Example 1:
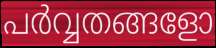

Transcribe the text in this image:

പർവ്വതങ്ങളോ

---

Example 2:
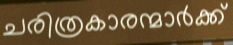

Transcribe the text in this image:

ചരിത്രകാരന്മാർക്ക്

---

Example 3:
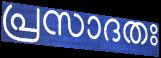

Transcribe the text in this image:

പ്രസാദതഃ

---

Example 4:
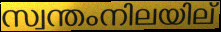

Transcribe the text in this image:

സ്വന്തംനിലയില്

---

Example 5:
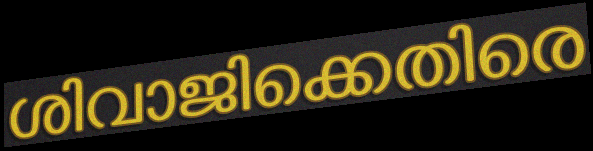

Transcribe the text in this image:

ശിവാജിക്കെതിരെ